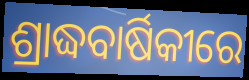
ଶ୍ରାଦ୍ଧବାର୍ଷିକୀରେ